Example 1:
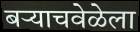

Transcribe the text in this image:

बर्‍याचवेळेला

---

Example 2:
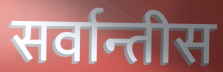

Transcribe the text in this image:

सर्वान्तीस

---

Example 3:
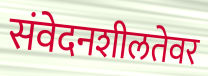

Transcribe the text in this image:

संवेदनशीलतेवर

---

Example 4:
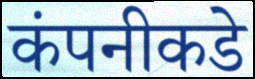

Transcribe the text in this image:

कंपनीकडे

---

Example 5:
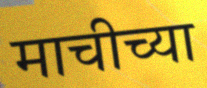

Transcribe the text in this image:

माचीच्या